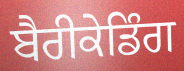
ਬੈਰੀਕੇਡਿੰਗ